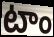
టాం